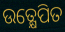
ଉତ୍କ୍ଷେପିତ